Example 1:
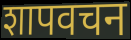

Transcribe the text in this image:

शापवचन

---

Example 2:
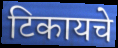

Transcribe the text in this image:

टिकायचे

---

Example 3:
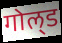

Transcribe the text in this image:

गोल्ड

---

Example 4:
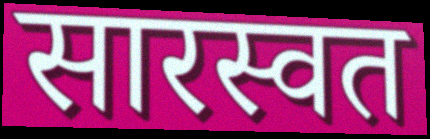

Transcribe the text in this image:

सारस्वत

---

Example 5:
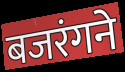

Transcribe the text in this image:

बजरंगने